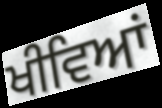
ਖੀਵਿਆਂ